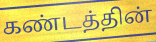
கண்டத்தின்